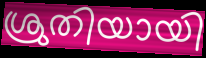
ശ്രുതിയായി